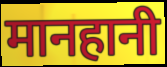
मानहानी